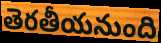
తెరతీయనుంది